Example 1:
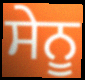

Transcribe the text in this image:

ਸੇਨੂ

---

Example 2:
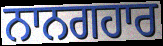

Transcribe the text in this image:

ਨਾਨਗਹਾਰ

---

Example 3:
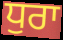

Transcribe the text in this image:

ਧੁਰਾ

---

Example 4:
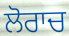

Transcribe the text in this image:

ਲੋਰਾਚ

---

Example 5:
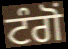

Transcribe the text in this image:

ਟੰਗੋਂ